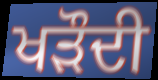
ਖੜੌਦੀ